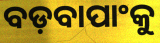
ବଡ଼ବାପାଂକୁ